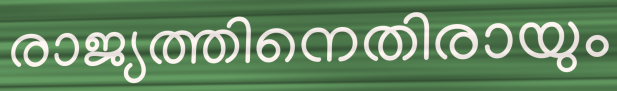
രാജ്യത്തിനെതിരായും